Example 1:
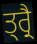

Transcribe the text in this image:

ਤ੍ਰ੍ਰੈ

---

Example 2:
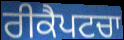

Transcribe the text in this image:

ਰੀਕੈਪਟਚਾ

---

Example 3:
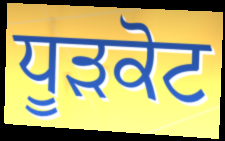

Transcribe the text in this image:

ਧੂੜਕੋਟ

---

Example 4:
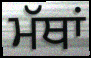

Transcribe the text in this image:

ਮੱਥਾਂ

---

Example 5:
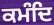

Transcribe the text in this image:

ਕਮੰਦਿ